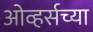
ओव्हर्सच्या